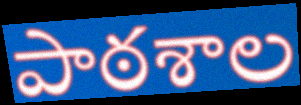
పాఠశాల